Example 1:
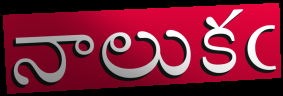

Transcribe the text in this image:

నాలుకఁ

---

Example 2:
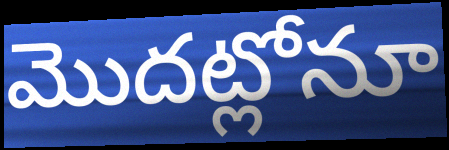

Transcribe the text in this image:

మొదట్లోనూ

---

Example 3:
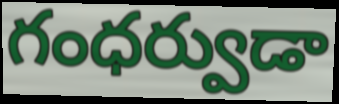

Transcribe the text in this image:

గంధర్వుడా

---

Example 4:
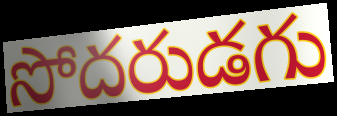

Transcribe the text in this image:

సోదరుడగు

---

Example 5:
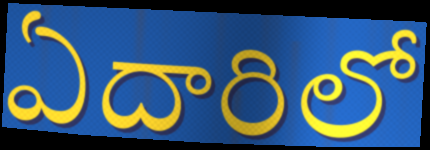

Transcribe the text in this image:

ఏదారిలో